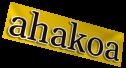
ahakoa